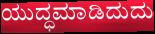
ಯುದ್ಧಮಾಡಿದುದು